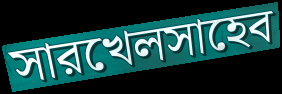
সারখেলসাহেব